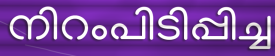
നിറംപിടിപ്പിച്ച